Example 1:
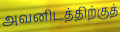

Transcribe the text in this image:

அவனிடத்திற்குத்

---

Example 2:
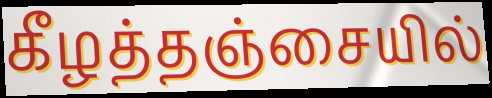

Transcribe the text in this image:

கீழத்தஞ்சையில்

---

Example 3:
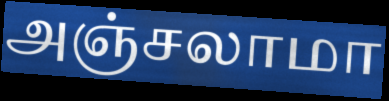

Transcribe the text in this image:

அஞ்சலாமா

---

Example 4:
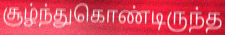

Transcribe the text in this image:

சூழ்ந்துகொண்டிருந்த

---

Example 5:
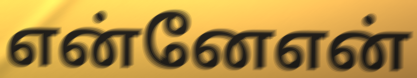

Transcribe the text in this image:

என்னேஎன்